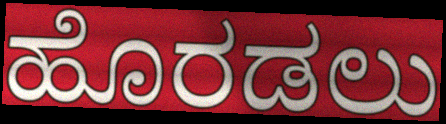
ಹೊರಡಲು